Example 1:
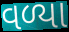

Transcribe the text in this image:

વળ્યા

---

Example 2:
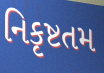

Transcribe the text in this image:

નિકૃષ્ટતમ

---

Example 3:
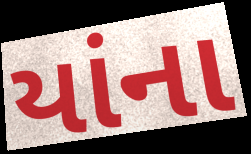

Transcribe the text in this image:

યાંના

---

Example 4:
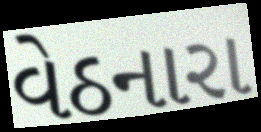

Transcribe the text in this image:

વેઠનારા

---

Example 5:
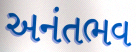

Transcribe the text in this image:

અનંતભવ